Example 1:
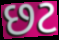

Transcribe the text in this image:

છટ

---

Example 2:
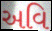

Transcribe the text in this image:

અવિ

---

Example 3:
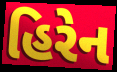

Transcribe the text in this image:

હિરેન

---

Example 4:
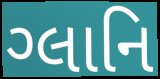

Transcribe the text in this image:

ગ્લાનિ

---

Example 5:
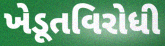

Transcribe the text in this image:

ખેડૂતવિરોધી